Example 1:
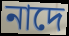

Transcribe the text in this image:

নাদে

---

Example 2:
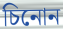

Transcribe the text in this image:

চিনোন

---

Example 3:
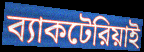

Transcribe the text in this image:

ব্যাকটেরিয়াই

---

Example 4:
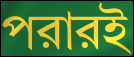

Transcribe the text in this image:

পরারই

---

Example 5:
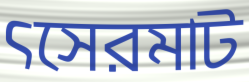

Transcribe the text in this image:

ৎসেরমাট